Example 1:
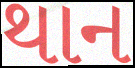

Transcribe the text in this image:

થાન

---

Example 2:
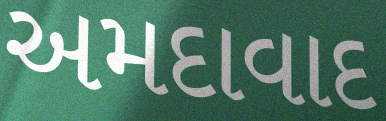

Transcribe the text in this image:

અમદાવાદ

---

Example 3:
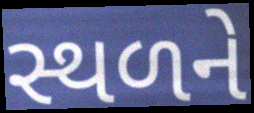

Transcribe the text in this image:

સ્થળને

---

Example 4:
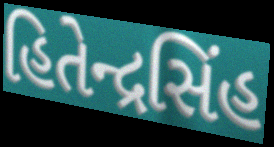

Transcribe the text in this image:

હિતેન્દ્રસિંહ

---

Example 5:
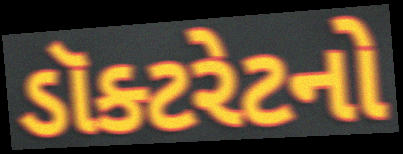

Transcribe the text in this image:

ડૉક્ટરેટનો